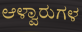
ಆಳ್ವಾರುಗಳ